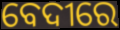
ବେଦୀରେ